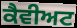
ਕੈਵੀਅਟ